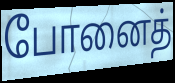
போனைத்